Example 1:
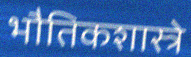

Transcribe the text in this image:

भौतिकशास्त्रे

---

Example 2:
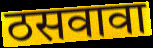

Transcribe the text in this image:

ठसवावा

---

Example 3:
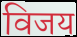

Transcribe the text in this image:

विजय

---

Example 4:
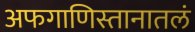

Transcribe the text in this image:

अफगाणिस्तानातलं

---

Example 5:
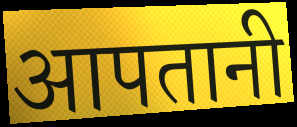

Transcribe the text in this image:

आपतानी